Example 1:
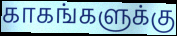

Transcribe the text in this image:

காகங்களுக்கு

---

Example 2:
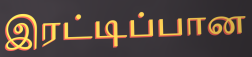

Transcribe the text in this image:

இரட்டிப்பான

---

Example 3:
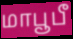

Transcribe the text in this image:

மாபூபீ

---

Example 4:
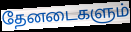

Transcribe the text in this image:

தேனடைகளும்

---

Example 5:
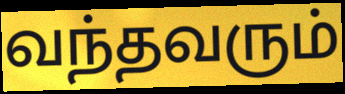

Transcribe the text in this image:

வந்தவரும்